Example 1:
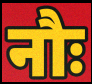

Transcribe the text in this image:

नौः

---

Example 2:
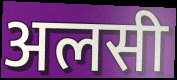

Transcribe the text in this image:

अलसी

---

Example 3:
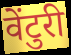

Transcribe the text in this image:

वेंटुरी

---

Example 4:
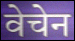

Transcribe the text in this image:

वेचेन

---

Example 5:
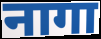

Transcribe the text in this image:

नागा